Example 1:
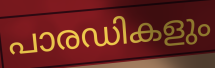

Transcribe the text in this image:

പാരഡികളും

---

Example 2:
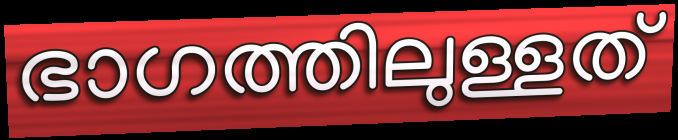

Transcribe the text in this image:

ഭാഗത്തിലുള്ളത്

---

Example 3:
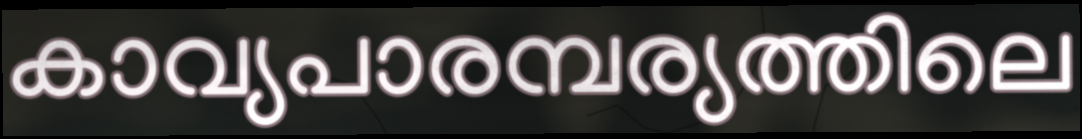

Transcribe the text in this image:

കാവ്യപാരമ്പര്യത്തിലെ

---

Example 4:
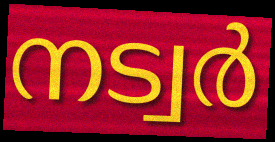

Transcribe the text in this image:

നട്വർ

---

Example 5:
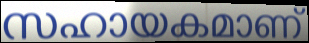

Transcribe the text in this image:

സഹായകമാണ്